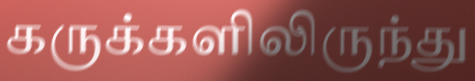
கருக்களிலிருந்து